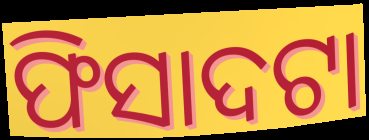
ଫିସାଦଟା